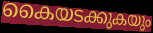
കൈയടക്കുകയും